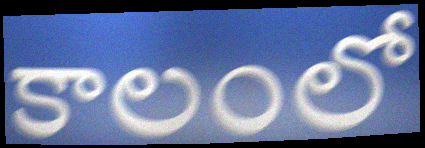
కాలంలో